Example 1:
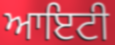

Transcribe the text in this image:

ਆਇਟੀ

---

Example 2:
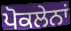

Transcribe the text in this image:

ਪੋਕਲੇਨਾਂ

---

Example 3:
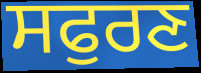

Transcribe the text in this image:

ਸਫੁਰਣ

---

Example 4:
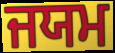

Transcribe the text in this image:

ਜਯਮ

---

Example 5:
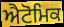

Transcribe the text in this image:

ਐਟੋਮਿਕ